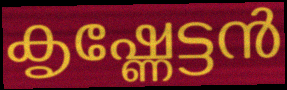
കൃഷ്ണേട്ടൻ